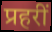
प्रहरीं